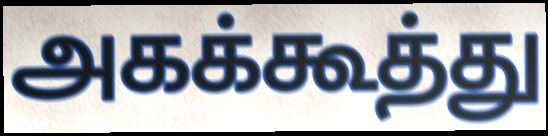
அகக்கூத்து